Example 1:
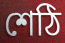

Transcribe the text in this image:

শেঠি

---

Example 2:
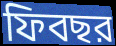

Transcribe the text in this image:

ফিবছর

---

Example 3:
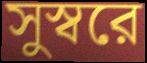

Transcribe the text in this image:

সুস্বরে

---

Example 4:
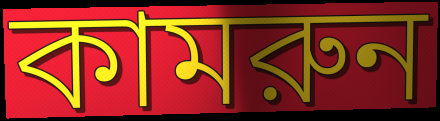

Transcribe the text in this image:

কামরুন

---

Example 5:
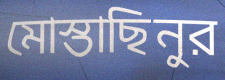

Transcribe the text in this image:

মোস্তাছিনুর